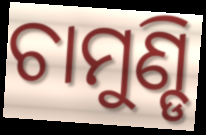
ଚାମୁଣ୍ଡି